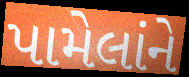
પામેલાંને